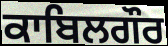
ਕਾਬਿਲਗੌਰ